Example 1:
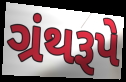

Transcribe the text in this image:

ગ્રંથરૂપે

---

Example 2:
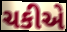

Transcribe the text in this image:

ચકીએ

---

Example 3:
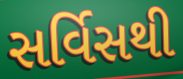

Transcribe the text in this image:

સર્વિસથી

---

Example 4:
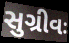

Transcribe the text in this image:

સુગ્રીવઃ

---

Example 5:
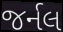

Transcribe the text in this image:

જર્નલ